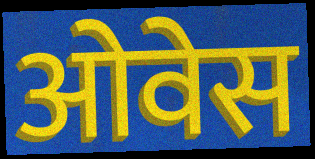
ओवेस